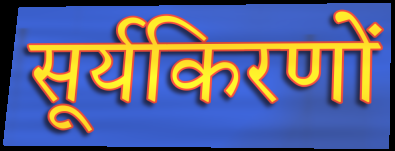
सूर्यकिरणों